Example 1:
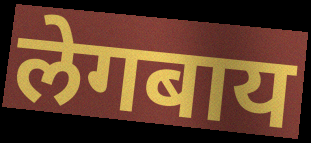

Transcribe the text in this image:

लेगबाय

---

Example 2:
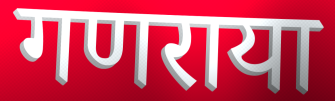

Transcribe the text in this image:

गणराया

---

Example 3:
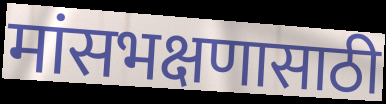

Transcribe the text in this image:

मांसभक्षणासाठी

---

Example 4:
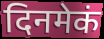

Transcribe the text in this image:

दिनमेकं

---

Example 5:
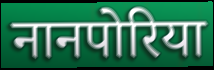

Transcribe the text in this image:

नानपोरिया